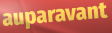
auparavant